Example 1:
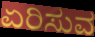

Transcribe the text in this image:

ಏರಿಸುವ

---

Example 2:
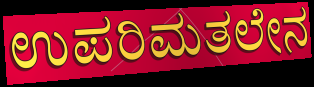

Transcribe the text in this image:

ಉಪರಿಮತಲೇನ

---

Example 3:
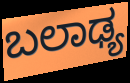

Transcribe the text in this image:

ಬಲಾಢ್ಯ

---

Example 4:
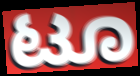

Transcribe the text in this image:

ಟೂ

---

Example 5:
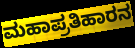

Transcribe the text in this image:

ಮಹಾಪ್ರತಿಹಾರನ